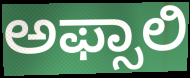
ಅಫ್ಸಾಲಿ